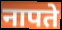
नापते